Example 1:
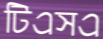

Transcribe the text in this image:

টিএসএ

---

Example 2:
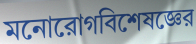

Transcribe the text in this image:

মনোরোগবিশেষজ্ঞের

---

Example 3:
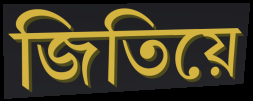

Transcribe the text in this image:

জিতিয়ে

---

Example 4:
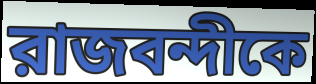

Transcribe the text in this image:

রাজবন্দীকে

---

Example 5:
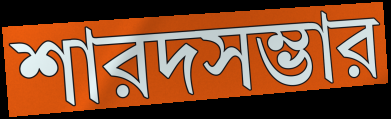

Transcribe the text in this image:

শারদসম্ভার